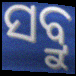
ସବ୍ରୁ